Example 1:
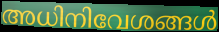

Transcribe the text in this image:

അധിനിവേശങ്ങൾ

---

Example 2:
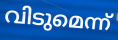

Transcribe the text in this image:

വിടുമെന്ന്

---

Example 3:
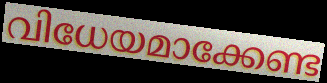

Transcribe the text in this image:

വിധേയമാക്കേണ്ട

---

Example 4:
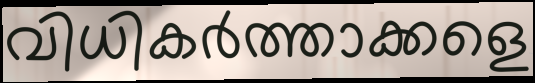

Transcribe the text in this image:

വിധികർത്താക്കളെ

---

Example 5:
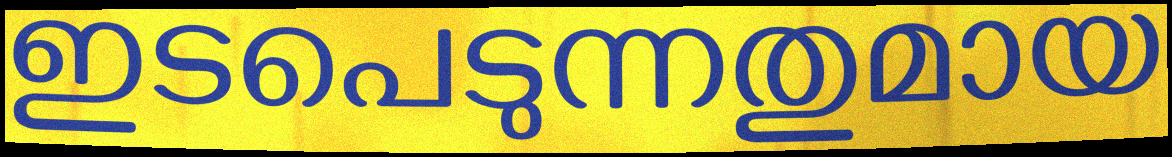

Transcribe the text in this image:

ഇടപെടുന്നതുമായ